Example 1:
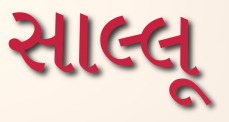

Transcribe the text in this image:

સાલ્લૂ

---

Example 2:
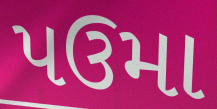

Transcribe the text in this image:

પઉમા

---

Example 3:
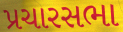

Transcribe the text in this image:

પ્રચારસભા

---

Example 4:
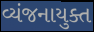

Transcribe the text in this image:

વ્યંજનાયુક્ત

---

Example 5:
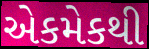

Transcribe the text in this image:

એકમેકથી